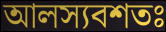
আলস্যবশতঃ